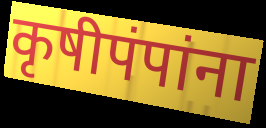
कृषीपंपांना